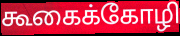
கூகைக்கோழி